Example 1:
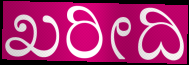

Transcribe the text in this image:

ಖರೀದಿ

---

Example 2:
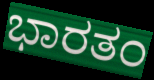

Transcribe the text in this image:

ಭಾರತಂ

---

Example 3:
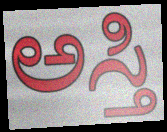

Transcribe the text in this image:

ಅಸ್ತಿ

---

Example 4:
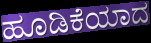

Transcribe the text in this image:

ಹೂಡಿಕೆಯಾದ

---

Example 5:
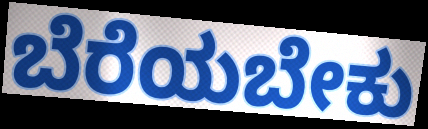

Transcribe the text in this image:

ಬೆರೆಯಬೇಕು